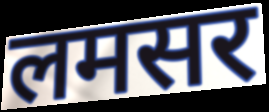
लमसर